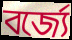
বর্জ্যে